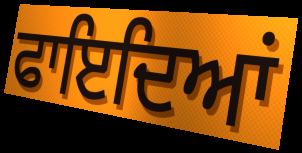
ਫਾਇਦਿਆਂ